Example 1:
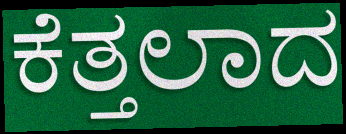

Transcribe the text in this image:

ಕೆತ್ತಲಾದ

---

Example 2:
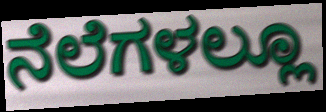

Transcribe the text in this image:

ನೆಲೆಗಳಲ್ಲೂ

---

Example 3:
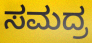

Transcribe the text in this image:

ಸಮದ್ರ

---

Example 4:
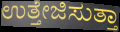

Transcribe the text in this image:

ಉತ್ತೇಜಿಸುತ್ತಾ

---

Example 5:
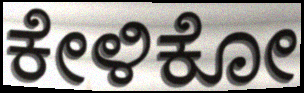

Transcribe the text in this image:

ಕೇಳಿಕೋ